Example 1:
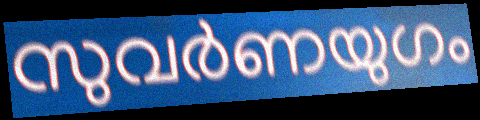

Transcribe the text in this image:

സുവർണയുഗം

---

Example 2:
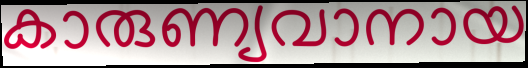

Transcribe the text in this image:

കാരുണ്യവാനായ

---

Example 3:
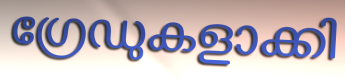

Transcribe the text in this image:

ഗ്രേഡുകളാക്കി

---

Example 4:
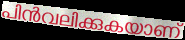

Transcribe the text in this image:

പിൻവലിക്കുകയാണ്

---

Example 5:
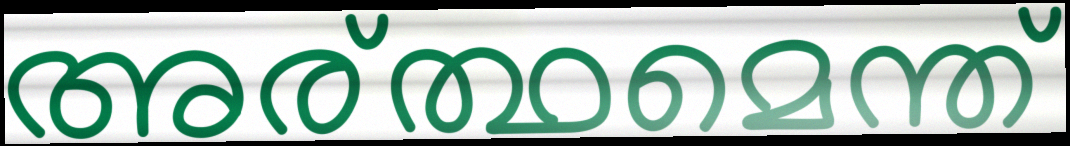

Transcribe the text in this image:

അര്ത്ഥമെന്ത്